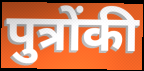
पुत्रोंकी